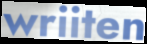
wriiten